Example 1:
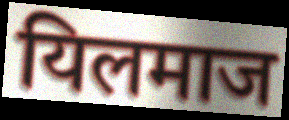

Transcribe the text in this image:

यिलमाज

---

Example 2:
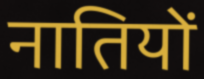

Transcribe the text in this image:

नातियों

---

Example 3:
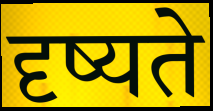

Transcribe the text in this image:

दृष्यते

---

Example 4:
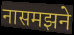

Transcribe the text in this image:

नासमझने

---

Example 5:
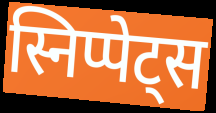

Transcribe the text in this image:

स्निप्पेट्स